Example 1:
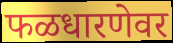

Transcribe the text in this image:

फळधारणेवर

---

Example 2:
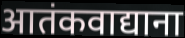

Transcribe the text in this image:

आतंकवाद्याना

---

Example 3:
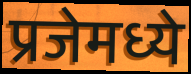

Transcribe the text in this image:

प्रजेमध्ये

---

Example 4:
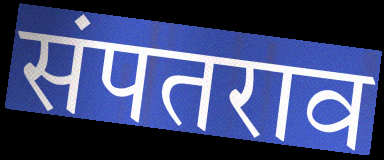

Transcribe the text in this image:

संपतराव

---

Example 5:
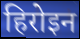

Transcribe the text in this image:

हिरोइन